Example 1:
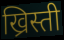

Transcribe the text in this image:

ख्रिस्ती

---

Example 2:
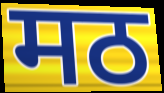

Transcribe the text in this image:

मठ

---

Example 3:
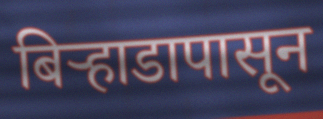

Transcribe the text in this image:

बिऱ्हाडापासून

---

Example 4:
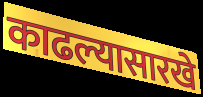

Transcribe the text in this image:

काढल्यासारखे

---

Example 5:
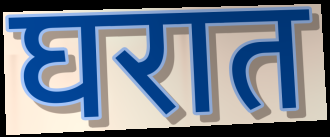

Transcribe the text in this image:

घरात